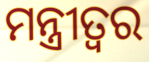
ମନ୍ତ୍ରୀତ୍ୱର